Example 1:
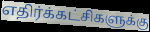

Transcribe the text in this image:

எதிர்க்கட்சிகளுக்கு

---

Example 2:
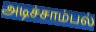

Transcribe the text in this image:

அடிச்சாம்பல்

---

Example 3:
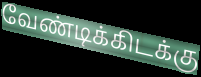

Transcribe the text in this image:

வேண்டிக்கிடக்கு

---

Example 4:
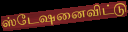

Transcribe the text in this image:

ஸ்டேஷனைவிட்டு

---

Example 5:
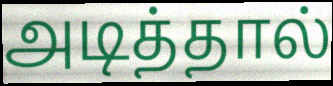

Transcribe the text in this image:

அடித்தால்